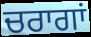
ਚਰਾਗਾਂ